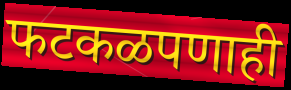
फटकळपणाही